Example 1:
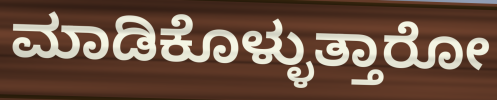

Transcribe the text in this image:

ಮಾಡಿಕೊಳ್ಳುತ್ತಾರೋ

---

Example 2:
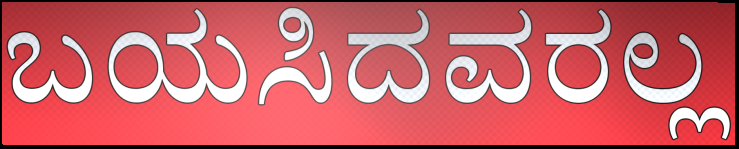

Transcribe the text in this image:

ಬಯಸಿದವರಲ್ಲ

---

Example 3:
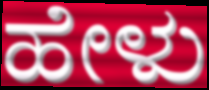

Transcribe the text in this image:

ಹೇಳು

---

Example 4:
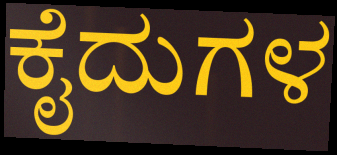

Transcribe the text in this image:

ಕೈದುಗಳ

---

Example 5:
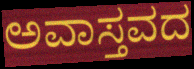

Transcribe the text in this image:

ಅವಾಸ್ತವದ